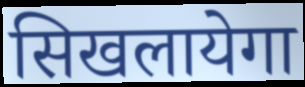
सिखलायेगा